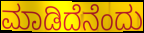
ಮಾಡಿದೆನೆಂದು